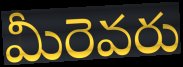
మీరెవరు